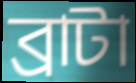
ব্রাটা